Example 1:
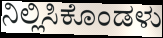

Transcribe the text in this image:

ನಿಲ್ಲಿಸಿಕೊಂಡಳು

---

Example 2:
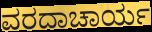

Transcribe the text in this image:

ವರದಾಚಾರ್ಯ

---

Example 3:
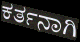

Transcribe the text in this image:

ಕರ್ತನಾಗಿ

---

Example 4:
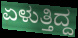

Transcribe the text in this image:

ಏಳುತ್ತಿದ್ದ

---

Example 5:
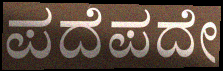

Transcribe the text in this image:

ಪದೆಪದೇ